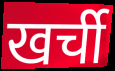
खर्ची